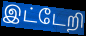
இட்டேறி